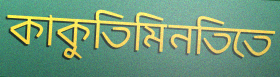
কাকুতিমিনতিতে